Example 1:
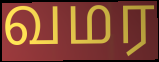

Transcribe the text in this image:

வமர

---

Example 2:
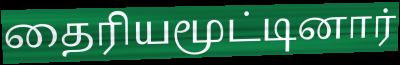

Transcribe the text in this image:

தைரியமூட்டினார்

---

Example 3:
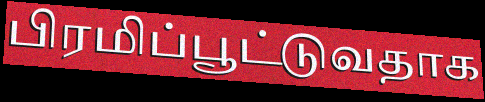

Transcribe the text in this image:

பிரமிப்பூட்டுவதாக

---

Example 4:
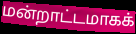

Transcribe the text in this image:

மன்றாட்டமாகக்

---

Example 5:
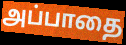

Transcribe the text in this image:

அப்பாதை